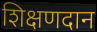
शिक्षणदान